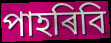
পাহৰিবি